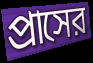
প্রাসের